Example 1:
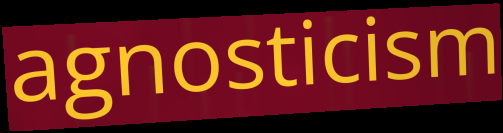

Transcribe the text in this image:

agnosticism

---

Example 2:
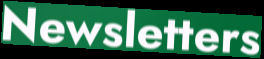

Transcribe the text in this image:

Newsletters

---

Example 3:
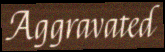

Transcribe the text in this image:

Aggravated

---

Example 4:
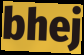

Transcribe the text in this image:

bhej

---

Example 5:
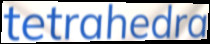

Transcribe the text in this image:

tetrahedra